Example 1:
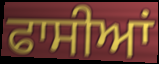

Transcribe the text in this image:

ਫਾਸੀਆਂ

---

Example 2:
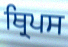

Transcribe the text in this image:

ਥ੍ਰਿਪਸ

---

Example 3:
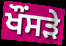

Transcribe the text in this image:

ਖੌਂਸੜੇ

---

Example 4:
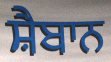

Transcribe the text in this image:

ਸ਼ੈਬਾਨ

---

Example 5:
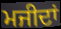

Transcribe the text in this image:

ਮਜੀਦਾਂ